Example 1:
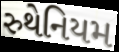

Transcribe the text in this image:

રુથેનિયમ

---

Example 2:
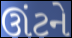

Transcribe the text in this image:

ઊંટને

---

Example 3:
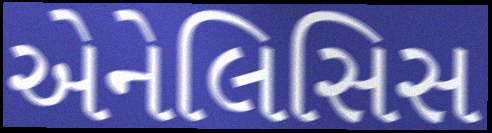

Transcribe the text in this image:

એનેલિસિસ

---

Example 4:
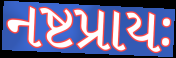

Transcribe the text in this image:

નષ્ટપ્રાયઃ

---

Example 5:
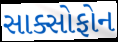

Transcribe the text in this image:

સાક્સોફોન